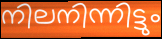
നിലനിന്നിട്ടും